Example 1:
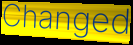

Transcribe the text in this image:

Changed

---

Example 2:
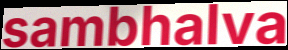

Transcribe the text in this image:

sambhalva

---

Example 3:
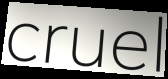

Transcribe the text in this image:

cruel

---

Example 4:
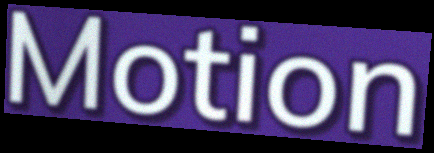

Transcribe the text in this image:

Motion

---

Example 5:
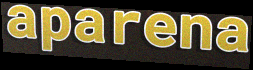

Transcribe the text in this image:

aparena